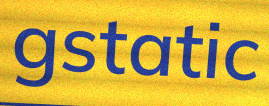
gstatic